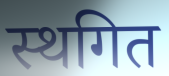
स्थगित